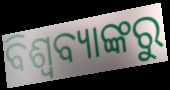
ବିଶ୍ୱବ୍ୟାଙ୍କରୁ